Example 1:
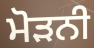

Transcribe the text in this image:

ਮੋੜਨੀ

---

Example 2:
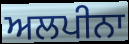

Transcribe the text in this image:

ਅਲਪੀਨਾ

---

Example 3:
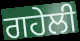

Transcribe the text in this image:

ਗਹੇਲੀ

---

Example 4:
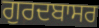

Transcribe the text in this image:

ਗੁਰਦਬਾਸਰ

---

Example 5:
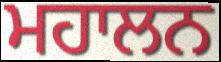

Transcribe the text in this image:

ਮਹਾਲਨ